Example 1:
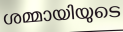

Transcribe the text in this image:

ശമ്മായിയുടെ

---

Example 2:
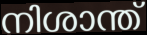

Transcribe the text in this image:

നിശാന്ത്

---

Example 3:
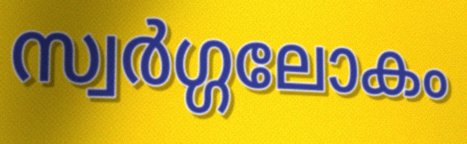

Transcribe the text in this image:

സ്വർഗ്ഗലോകം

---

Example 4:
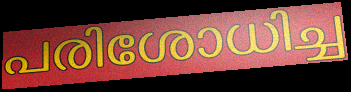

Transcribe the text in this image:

പരിശോധിച്ച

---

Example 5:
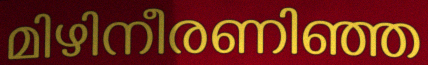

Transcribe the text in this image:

മിഴിനീരണിഞ്ഞ